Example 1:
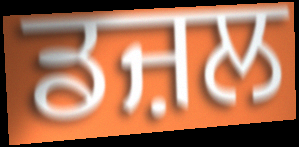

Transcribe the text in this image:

ਡਜ਼ਲ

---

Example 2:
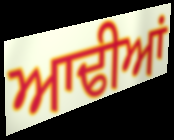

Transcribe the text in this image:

ਆਢੀਆਂ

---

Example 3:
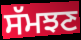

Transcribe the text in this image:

ਸੱਮਝਣ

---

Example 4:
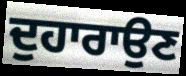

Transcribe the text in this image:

ਦੁਹਾਰਾਉਣ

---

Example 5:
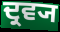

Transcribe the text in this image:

ਦ੍ਰਵ੍ਯ